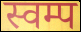
स्वम्प